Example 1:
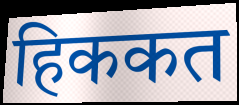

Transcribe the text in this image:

हिककत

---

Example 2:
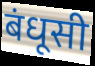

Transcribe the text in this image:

बंधूसी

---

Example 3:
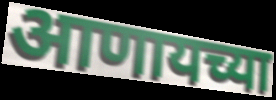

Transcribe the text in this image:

आणायच्या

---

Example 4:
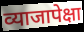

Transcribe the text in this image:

व्याजापेक्षा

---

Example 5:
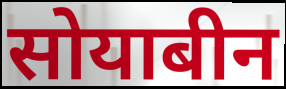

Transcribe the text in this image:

सोयाबीन